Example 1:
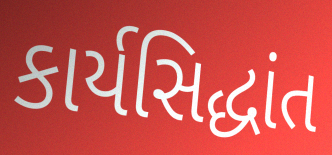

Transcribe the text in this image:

કાર્યસિદ્ધાંત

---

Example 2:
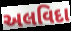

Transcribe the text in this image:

અલવિદા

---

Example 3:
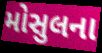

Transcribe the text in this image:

મોસુલના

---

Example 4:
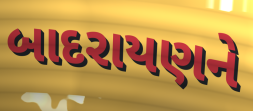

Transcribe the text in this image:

બાદરાયણને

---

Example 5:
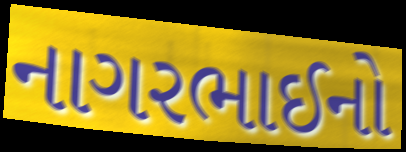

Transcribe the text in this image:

નાગરભાઈનો